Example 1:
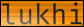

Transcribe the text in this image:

lukhi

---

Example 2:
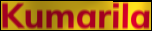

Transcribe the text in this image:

Kumarila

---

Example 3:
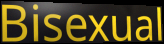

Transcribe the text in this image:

Bisexual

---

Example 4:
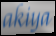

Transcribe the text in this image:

akiya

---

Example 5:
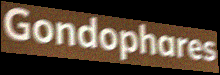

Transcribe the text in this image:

Gondophares